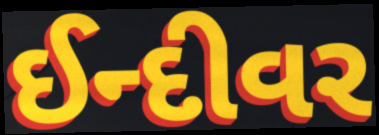
ઈન્દીવર